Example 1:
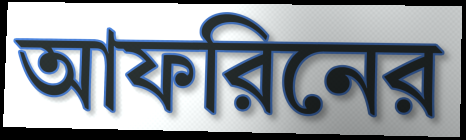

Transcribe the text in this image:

আফরিনের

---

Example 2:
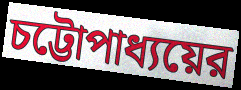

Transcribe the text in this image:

চট্টোপাধ্যয়ের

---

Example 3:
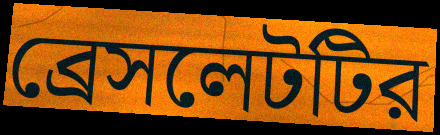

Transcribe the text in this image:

ব্রেসলেটটির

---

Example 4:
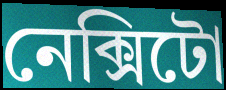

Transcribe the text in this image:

নেক্সিটো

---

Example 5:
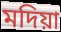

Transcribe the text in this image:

মদিয়া